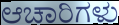
ಆಚಾರಿಗಳು